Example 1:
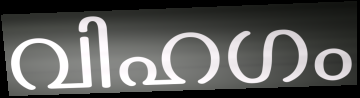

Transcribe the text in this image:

വിഹഗം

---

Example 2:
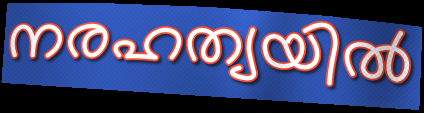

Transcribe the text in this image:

നരഹത്യയിൽ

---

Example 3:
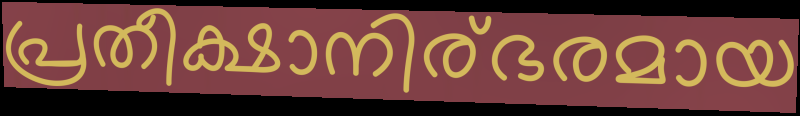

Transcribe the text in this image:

പ്രതീക്ഷാനിര്ഭരമായ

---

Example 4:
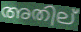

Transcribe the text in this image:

അതില്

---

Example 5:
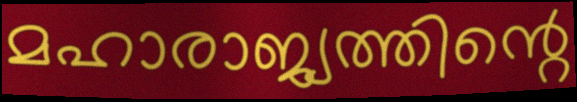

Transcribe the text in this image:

മഹാരാജ്യത്തിന്റെ